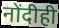
नोंदीही